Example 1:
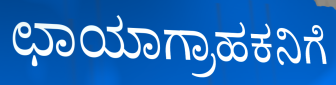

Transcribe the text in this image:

ಛಾಯಾಗ್ರಾಹಕನಿಗೆ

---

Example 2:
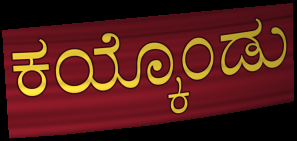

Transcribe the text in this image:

ಕಯ್ಕೊಂಡು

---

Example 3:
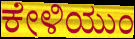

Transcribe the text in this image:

ಕೇಳಿಯುಂ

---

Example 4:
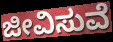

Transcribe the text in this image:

ಜೀವಿಸುವೆ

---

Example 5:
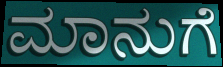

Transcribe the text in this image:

ಮಾನುಗೆ